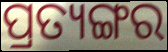
ପ୍ରତ୍ୟଙ୍ଗର